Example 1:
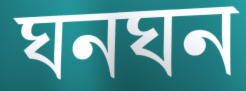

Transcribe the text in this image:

ঘনঘন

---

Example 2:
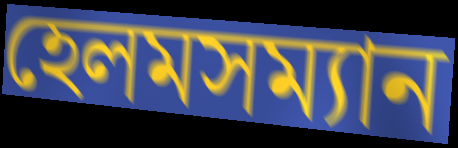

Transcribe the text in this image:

হেলমসম্যান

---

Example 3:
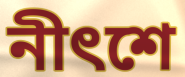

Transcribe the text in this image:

নীৎশে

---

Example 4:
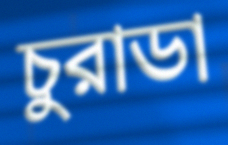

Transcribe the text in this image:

চুরাডা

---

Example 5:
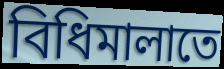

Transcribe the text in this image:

বিধিমালাতে